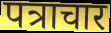
पत्राचार